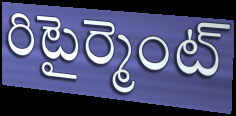
రిటైర్మెంట్